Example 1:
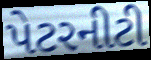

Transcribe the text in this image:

પેટરનીટી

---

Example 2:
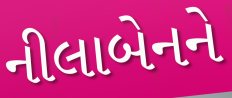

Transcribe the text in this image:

નીલાબેનને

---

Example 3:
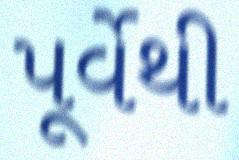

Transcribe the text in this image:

પૂર્વેથી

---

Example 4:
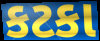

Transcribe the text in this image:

કટકા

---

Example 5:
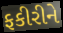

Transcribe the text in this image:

ફકીરીને